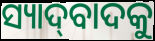
ସ୍ୟାଦ୍‌ବାଦକୁ